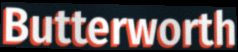
Butterworth